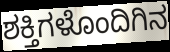
ಶಕ್ತಿಗಳೊಂದಿಗಿನ